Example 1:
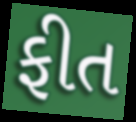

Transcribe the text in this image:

ફીત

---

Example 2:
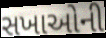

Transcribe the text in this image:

સખાઓની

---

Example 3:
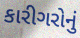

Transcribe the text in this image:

કારીગરોનું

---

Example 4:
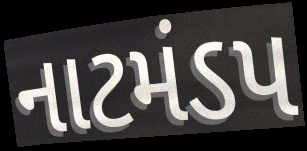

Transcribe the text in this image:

નાટમંડપ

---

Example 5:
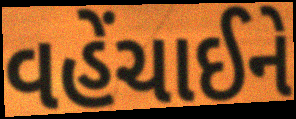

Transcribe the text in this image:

વહેંચાઈને